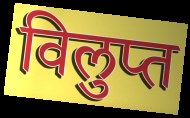
विलुप्त